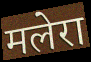
मलेरा